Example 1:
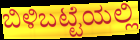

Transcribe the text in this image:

ಬಿಳಿಬಟ್ಟೆಯಲ್ಲಿ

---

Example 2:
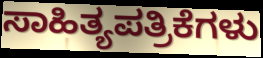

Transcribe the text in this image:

ಸಾಹಿತ್ಯಪತ್ರಿಕೆಗಳು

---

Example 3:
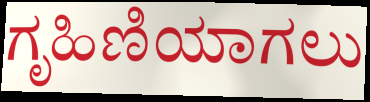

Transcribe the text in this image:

ಗೃಹಿಣಿಯಾಗಲು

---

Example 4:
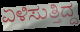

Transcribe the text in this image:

ಏಳಿಸುತ್ತಿದ್ದ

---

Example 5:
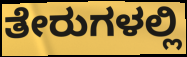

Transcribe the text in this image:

ತೇರುಗಳಲ್ಲಿ